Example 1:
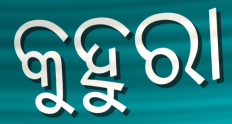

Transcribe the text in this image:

କୁହୁରା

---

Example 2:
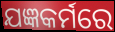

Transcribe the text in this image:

ଯଜ୍ଞକର୍ମରେ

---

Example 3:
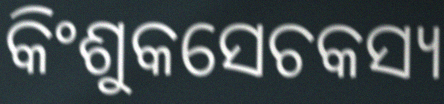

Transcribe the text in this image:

କିଂଶୁକସେଚକସ୍ୟ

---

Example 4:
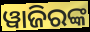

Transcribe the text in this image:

ୱାଜିରଙ୍କ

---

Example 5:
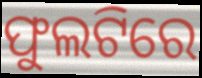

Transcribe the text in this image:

ଫୁଲଟିରେ